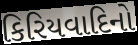
કિરિયવાદિનો